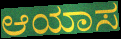
ಆಯಾಸ